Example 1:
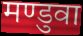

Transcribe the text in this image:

मण्डुवा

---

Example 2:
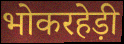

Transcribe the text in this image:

भोकरहेड़ी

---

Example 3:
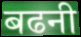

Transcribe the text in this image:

बढनी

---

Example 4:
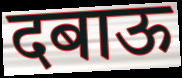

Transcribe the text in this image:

दबाऊ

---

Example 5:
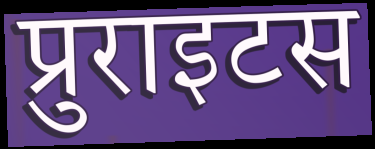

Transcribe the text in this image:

प्रुराइटस